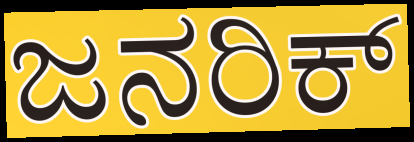
ಜನರಿಕ್